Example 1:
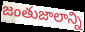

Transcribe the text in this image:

జంతుజాలాన్ని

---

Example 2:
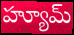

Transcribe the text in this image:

హ్యూమ్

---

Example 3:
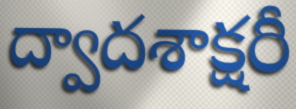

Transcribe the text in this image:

ద్వాదశాక్షరీ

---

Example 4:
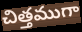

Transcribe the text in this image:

చిత్తముగా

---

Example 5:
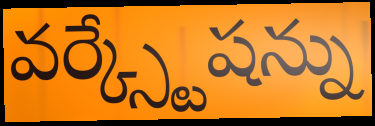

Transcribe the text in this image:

వర్క్స్టేషన్ను